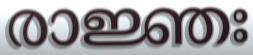
രാജ്ഞഃ